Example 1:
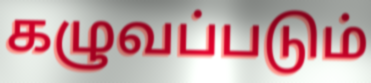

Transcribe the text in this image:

கழுவப்படும்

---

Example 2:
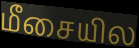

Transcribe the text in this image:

மீசையில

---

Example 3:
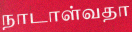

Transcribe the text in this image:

நாடாள்வதா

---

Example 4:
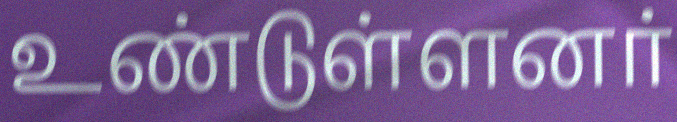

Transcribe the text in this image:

உண்டுள்ளனர்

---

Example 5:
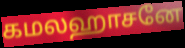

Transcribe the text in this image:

கமலஹாசனே